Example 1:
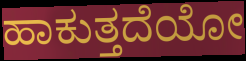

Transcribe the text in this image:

ಹಾಕುತ್ತದೆಯೋ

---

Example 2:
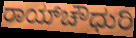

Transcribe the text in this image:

ರಾಯ್‌ಚೌಧುರಿ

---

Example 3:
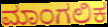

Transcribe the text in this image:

ಮಾಂಗಲಿಕ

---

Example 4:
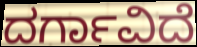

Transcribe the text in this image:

ದರ್ಗಾವಿದೆ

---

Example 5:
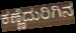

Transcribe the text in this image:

ಕಣ್ಣೆದುರಿಗಿನ